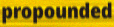
propounded